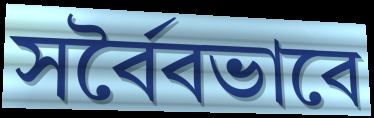
সর্বৈবভাবে